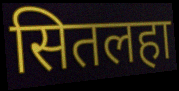
सितलहा